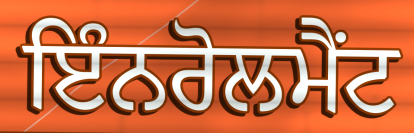
ਇੰਨਰੋਲਮੈਂਟ